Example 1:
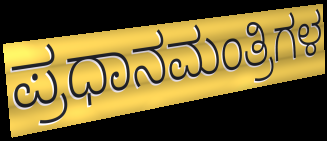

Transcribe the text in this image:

ಪ್ರಧಾನಮಂತ್ರಿಗಳ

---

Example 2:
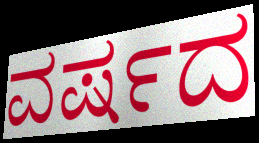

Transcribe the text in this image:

ವರ್ಷದ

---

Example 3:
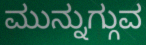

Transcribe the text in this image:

ಮುನ್ನುಗ್ಗುವ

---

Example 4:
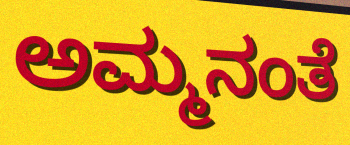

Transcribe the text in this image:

ಅಮ್ಮನಂತೆ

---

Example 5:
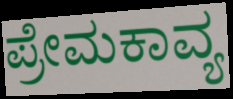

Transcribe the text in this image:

ಪ್ರೇಮಕಾವ್ಯ